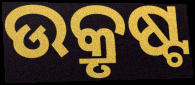
ଉକ୍ରୃଷ୍ଟ